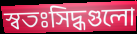
স্বতঃসিদ্ধগুলো